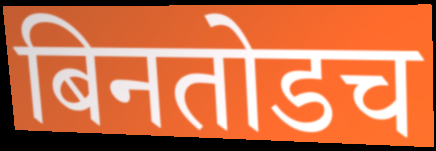
बिनतोडच